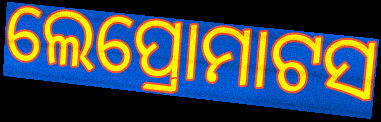
ଲେପ୍ରୋମାଟସ